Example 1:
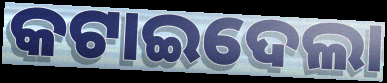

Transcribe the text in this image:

କଟାଇଦେଲା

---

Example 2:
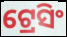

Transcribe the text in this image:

ଟ୍ରେସିଂ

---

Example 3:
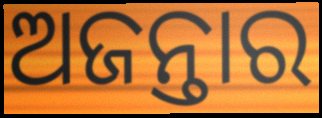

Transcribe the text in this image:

ଅଜନ୍ତାର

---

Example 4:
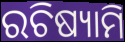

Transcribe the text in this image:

ରଚିଷ୍ୟାମି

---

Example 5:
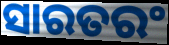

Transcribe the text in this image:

ସାରତରଂ